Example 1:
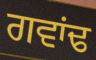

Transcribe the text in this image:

ਗਵਾਂਢ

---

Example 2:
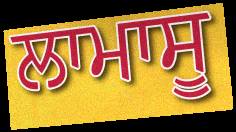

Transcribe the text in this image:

ਲਾਮਾਸੂ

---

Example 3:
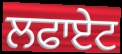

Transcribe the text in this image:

ਲਫਾਏਟ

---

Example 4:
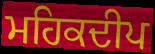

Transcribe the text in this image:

ਮਹਿਕਦੀਪ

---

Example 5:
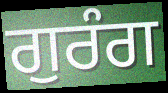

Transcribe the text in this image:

ਗੁਰੰਗ